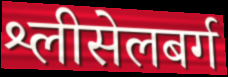
श्लीसेलबर्ग